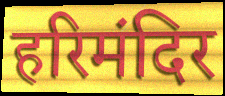
हरिमंदिर